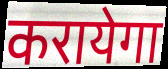
करायेगा